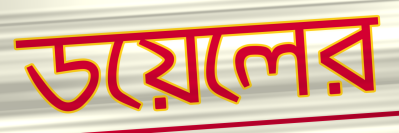
ডয়েলের